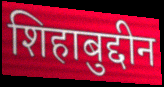
शिहाबुद्दीन